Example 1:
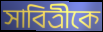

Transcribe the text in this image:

সাবিত্রীকে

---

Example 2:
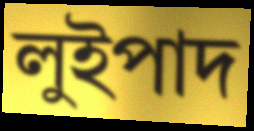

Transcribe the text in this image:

লুইপাদ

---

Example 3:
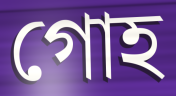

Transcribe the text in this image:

গোহ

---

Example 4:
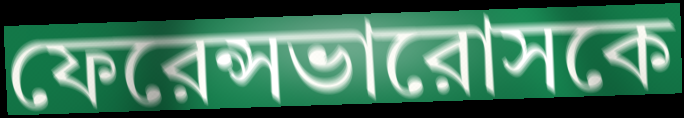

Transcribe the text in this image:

ফেরেন্সভারোসকে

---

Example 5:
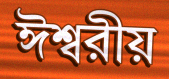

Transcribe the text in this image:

ঈশ্বরীয়